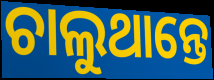
ଚାଲୁଥାନ୍ତେ